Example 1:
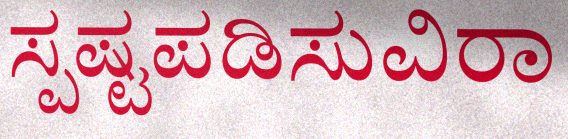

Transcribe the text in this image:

ಸ್ಪಷ್ಟಪಡಿಸುವಿರಾ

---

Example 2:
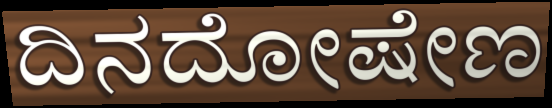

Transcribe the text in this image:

ದಿನದೋಷೇಣ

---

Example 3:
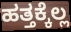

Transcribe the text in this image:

ಹತ್ತಕ್ಕೆಲ್ಲ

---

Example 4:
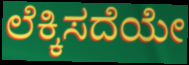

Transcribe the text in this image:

ಲೆಕ್ಕಿಸದೆಯೇ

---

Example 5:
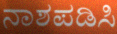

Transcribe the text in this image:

ನಾಶಪಡಿಸಿ